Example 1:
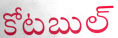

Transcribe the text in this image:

కోటబుల్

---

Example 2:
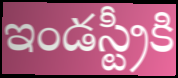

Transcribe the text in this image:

ఇండస్ట్రీకి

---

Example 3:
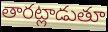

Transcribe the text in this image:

తారట్లాడుతూ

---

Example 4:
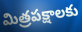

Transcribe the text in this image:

మిత్రపక్షాలకు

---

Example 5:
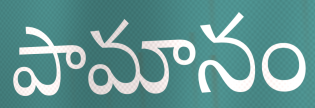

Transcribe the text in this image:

పామానం